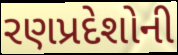
રણપ્રદેશોની